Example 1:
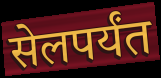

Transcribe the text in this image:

सेलपर्यंत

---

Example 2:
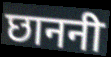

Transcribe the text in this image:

छाननी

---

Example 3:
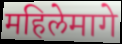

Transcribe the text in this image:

महिलेमागे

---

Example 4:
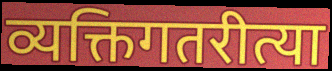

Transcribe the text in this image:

व्यक्तिगतरीत्या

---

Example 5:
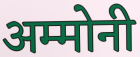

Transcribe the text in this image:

अम्मोनी